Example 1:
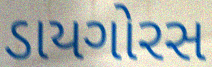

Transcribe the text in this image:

ડાયગોરસ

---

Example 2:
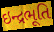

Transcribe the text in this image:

ઇન્દ્રભૂતિ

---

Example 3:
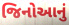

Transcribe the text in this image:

જિનોઆનું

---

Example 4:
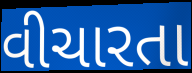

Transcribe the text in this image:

વીચારતા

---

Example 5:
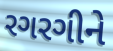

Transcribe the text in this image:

રગરગીને